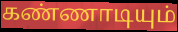
கண்ணாடியும்